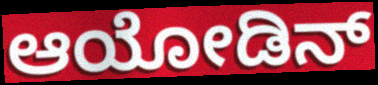
ಆಯೋಡಿನ್